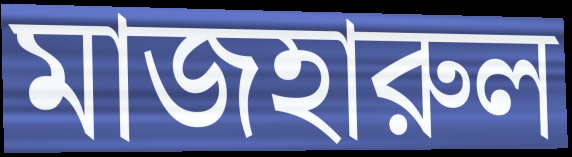
মাজহারুল